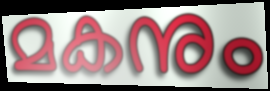
മകനും